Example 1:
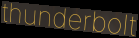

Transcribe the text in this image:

thunderbolt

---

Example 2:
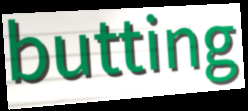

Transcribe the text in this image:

butting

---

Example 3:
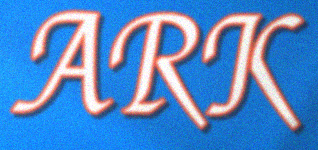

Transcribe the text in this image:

ARK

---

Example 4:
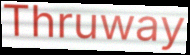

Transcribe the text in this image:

Thruway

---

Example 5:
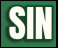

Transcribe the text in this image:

SIN